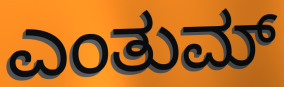
ಎಂತುಮ್